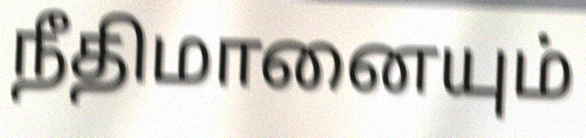
நீதிமானையும்